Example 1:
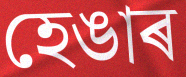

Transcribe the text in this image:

হেঙাৰ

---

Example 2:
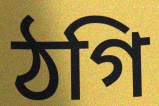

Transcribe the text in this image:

ঠগি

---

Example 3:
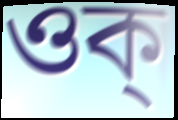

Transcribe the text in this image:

ওক্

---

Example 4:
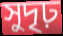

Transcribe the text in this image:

সুদৃঢ়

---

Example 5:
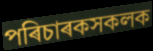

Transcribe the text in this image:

পৰিচাৰকসকলক